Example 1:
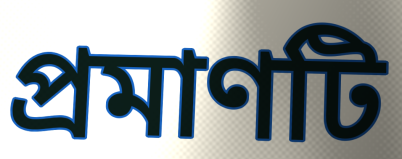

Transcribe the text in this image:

প্রমাণটি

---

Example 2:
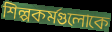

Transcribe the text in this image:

শিল্পকর্মগুলোকে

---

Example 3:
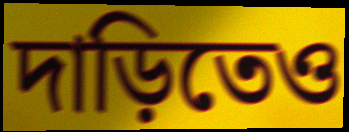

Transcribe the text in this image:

দাড়িতেও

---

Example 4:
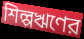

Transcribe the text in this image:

শিল্পঋণের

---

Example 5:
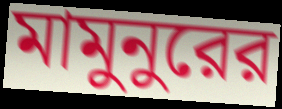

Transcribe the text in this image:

মামুনুরের